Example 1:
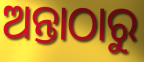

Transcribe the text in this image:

ଅନ୍ତାଠାରୁ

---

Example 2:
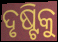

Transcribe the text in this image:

ଦୃଷ୍ଟିକୁ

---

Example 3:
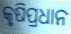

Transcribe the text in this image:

କୃଷିପ୍ରଧାନ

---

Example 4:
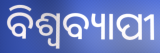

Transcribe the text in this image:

ବିଶ୍ଵବ୍ୟାପୀ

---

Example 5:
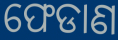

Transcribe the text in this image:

ଫେଡାଣ